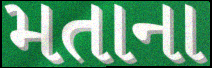
મતાના